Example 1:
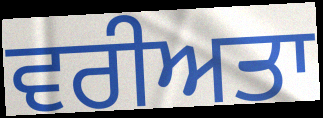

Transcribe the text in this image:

ਵਰੀਅਤਾ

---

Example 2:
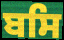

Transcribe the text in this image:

ਬਸਿ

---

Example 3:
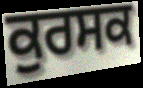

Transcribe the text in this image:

ਕੁਰਸਕ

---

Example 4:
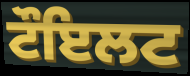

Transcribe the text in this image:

ਟੌਇਲਟ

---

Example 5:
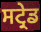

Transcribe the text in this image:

ਸਟ੍ਰੇਡ